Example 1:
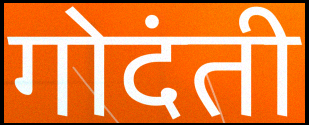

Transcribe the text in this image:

गोदंती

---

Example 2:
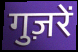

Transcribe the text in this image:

गुज़रें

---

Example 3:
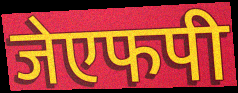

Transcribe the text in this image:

जेएफपी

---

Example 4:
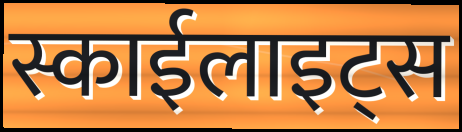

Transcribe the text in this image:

स्काईलाइट्स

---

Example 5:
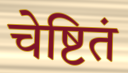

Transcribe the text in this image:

चेष्टितं